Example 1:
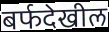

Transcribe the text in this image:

बर्फदेखील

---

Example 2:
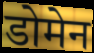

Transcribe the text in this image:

डोमेन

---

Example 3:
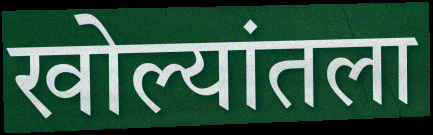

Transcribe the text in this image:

खोल्यांतला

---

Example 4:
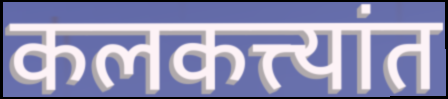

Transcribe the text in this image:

कलकत्त्यांत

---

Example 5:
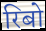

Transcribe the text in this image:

रिबो